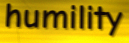
humility